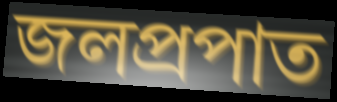
জলপ্রপাত